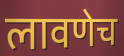
लावणेच